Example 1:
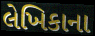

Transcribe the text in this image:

લેખિકાના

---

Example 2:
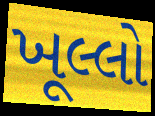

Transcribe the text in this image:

ખૂલ્લો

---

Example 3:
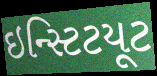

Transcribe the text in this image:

ઇન્સ્ટિટયૂટ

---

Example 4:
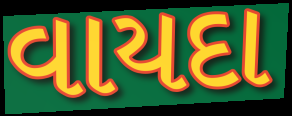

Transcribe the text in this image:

વાયદા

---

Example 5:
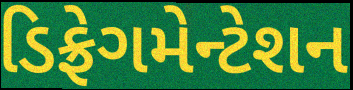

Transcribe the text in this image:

ડિફ્રેગમેન્ટેશન